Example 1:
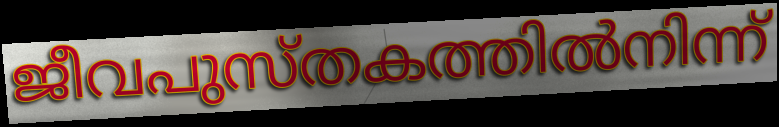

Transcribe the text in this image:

ജീവപുസ്തകത്തിൽനിന്ന്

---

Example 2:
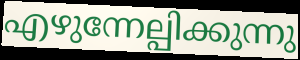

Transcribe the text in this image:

എഴുന്നേല്പിക്കുന്നു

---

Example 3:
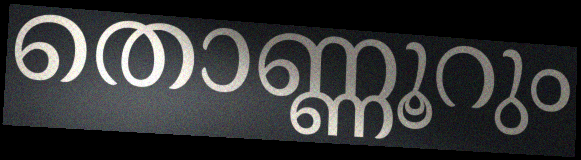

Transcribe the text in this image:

തൊണ്ണൂറും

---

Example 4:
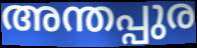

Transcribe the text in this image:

അന്തപ്പുര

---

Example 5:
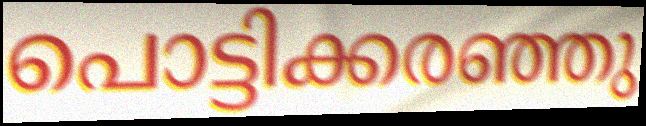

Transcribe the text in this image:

പൊട്ടിക്കരഞ്ഞു